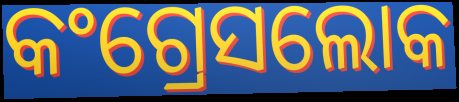
କଂଗ୍ରେସଲୋକ